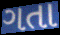
ગતા